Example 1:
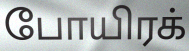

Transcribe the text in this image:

போயிரக்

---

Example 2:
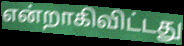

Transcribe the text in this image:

என்றாகிவிட்டது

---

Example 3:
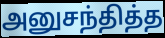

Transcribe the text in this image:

அனுசந்தித்த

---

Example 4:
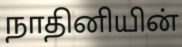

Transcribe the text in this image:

நாதினியின்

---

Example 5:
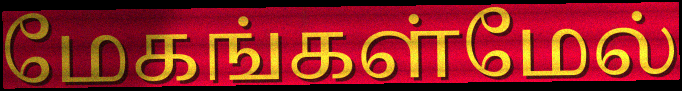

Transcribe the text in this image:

மேகங்கள்மேல்